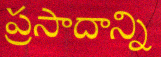
ప్రసాదాన్ని